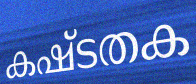
കഷ്ടതക